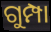
ଗୁମ୍ପା